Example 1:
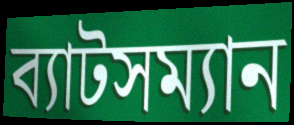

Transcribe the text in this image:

ব্যাটসম্যান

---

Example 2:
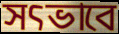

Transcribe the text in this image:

সৎভাবে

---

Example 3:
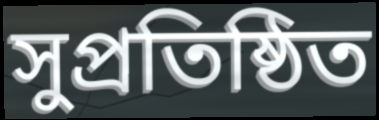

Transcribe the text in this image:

সুপ্রতিষ্ঠিত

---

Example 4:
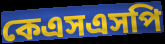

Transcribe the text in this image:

কেএসএসপি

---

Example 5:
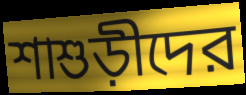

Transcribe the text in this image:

শাশুড়ীদের